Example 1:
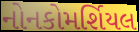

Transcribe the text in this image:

નોનકોમર્શિયલ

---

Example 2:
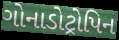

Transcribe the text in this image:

ગોનાડોટ્રોપિન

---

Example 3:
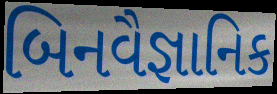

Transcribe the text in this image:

બિનવૈજ્ઞાનિક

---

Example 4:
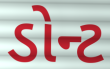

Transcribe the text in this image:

ડોન્ટ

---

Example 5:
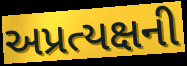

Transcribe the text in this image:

અપ્રત્યક્ષની